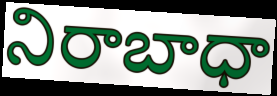
నిరాబాధా